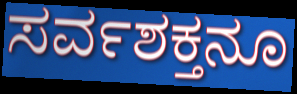
ಸರ್ವಶಕ್ತನೂ